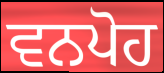
ਵਨਪੋਹ